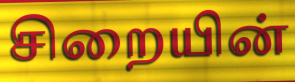
சிறையின்